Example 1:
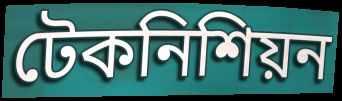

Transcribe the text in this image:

টেকনিশিয়ন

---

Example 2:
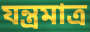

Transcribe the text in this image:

যন্ত্রমাত্র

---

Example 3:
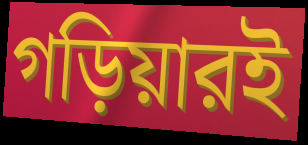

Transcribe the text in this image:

গড়িয়ারই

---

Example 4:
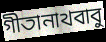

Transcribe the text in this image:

গীতানাথবাবু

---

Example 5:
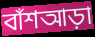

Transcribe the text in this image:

বাঁশআড়া